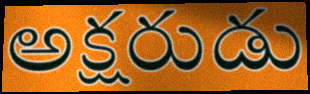
అక్షరుడు